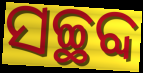
ସଚ୍ଛବ୍ଦ